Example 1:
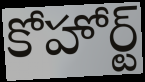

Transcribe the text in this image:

కోహోర్ట్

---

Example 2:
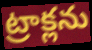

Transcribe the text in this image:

ట్రాక్లను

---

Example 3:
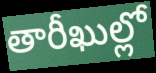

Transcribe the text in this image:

తారీఖుల్లో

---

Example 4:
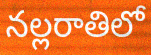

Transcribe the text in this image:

నల్లరాతిలో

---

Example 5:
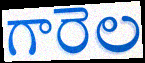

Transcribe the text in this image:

గారెల